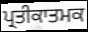
ਪ੍ਰਤੀਕਾਤਮਕ